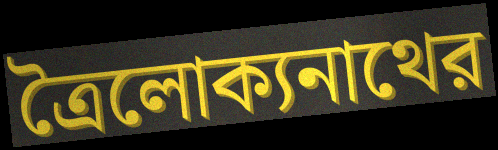
ত্রৈলোক্যনাথের